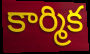
కార్మిక